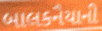
બાલકનૈયાની